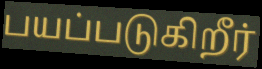
பயப்படுகிறீர்